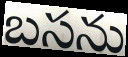
బసను